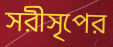
সরীসৃপের